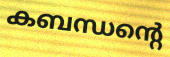
കബന്ധന്റെ